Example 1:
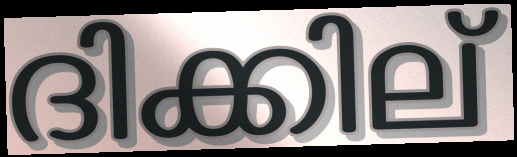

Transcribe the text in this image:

ദിക്കില്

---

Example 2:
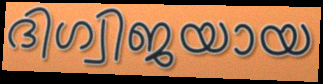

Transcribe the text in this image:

ദിഗ്വിജയായ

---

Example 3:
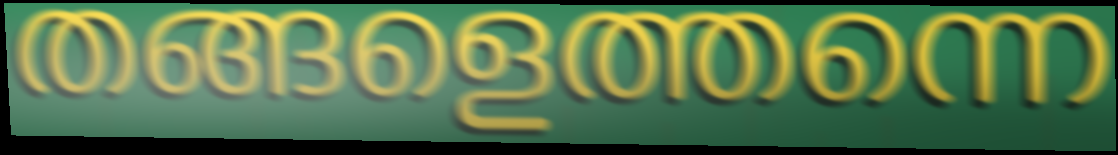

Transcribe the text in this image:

തങ്ങളെത്തന്നെ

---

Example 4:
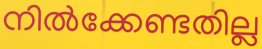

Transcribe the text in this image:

നിൽക്കേണ്ടതില്ല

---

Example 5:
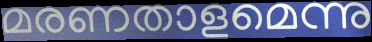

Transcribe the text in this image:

മരണതാളമെന്നു